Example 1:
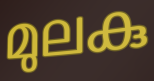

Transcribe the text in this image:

മുലകു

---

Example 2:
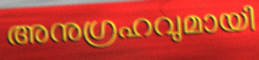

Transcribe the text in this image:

അനുഗ്രഹവുമായി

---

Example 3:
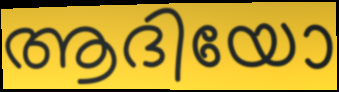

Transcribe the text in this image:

ആദിയോ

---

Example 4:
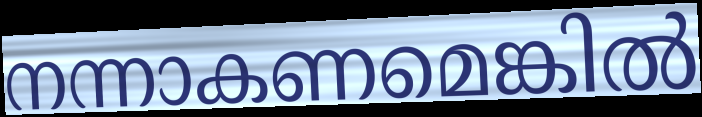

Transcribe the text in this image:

നന്നാകണമെങ്കിൽ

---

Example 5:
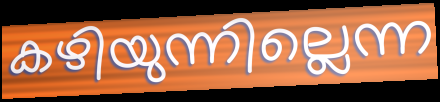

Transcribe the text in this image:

കഴിയുന്നില്ലെന്ന